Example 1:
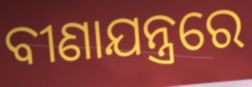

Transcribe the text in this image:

ବୀଣାଯନ୍ତ୍ରରେ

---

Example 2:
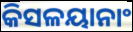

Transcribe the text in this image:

କିସଳୟାନାଂ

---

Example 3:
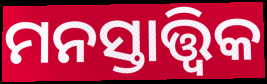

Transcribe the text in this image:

ମନସ୍ତାତ୍ତ୍ବିକ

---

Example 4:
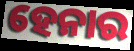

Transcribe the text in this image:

ହେନାର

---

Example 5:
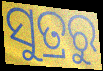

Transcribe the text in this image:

ସୁତ୍ରରୁ